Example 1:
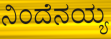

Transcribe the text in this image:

ನಿಂದೆನಯ್ಯ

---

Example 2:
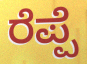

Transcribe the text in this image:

ರೆಪ್ಪೆ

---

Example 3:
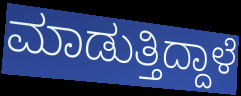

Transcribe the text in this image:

ಮಾಡುತ್ತಿದ್ದಾಳೆ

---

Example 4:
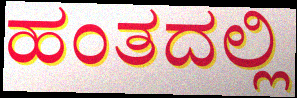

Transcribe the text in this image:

ಹಂತದಲ್ಲಿ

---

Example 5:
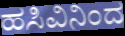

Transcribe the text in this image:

ಹಸಿವಿನಿಂದ